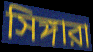
সিঙ্গারা